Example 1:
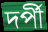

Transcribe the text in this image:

দর্পী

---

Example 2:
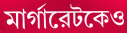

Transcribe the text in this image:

মার্গারেটকেও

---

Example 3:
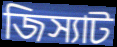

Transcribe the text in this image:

জিস্যাট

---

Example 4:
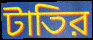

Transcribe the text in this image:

টাতির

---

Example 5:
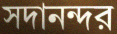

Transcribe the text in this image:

সদানন্দর